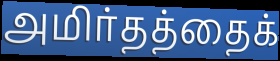
அமிர்தத்தைக்